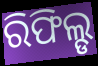
ରିଫିଲ୍ଡ